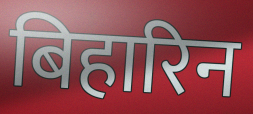
बिहारिन